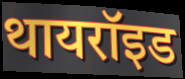
थायरॉइड